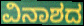
ವಿನಾಶದ